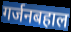
गर्जनबहाल